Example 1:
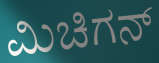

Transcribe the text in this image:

ಮಿಚಿಗನ್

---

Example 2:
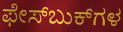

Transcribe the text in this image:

ಫೇಸ್‌ಬುಕ್‌ಗಳ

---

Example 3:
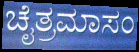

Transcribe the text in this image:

ಚೈತ್ರಮಾಸಂ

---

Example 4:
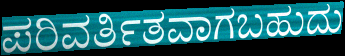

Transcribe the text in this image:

ಪರಿವರ್ತಿತವಾಗಬಹುದು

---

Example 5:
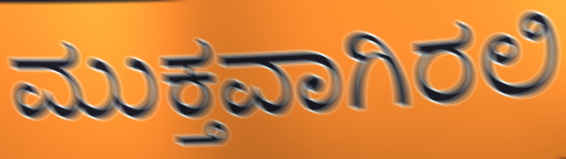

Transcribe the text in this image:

ಮುಕ್ತವಾಗಿರಲಿ